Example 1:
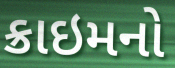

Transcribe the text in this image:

ક્રાઇમનો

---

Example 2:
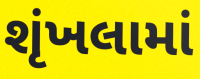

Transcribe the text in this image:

શૃંખલામાં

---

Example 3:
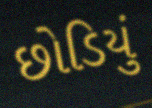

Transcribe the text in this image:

છોડિયું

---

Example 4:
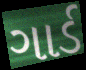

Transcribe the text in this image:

ગાર્ડ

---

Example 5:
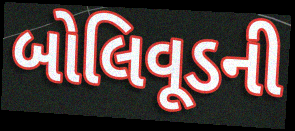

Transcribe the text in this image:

બોલિવૂડની